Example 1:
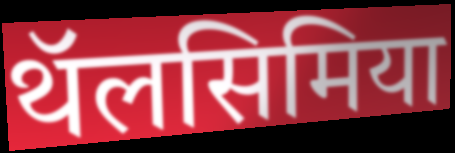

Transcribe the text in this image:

थॅलसिमिया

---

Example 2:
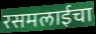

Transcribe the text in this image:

रसमलाईचा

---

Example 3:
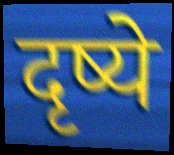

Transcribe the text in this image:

दृष्ये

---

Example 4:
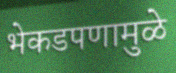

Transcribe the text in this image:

भेकडपणामुळे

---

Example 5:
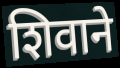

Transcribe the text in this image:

शिवाने